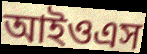
আইওএস